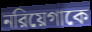
নরিয়েগাকে